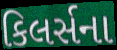
કિલર્સના